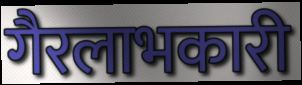
गैरलाभकारी